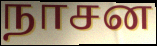
நாசன